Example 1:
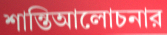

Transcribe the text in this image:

শান্তিআলোচনার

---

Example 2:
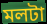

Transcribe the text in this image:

মলটা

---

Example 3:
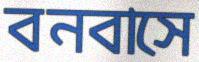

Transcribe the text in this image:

বনবাসে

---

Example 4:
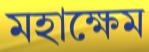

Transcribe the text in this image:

মহাক্ষেম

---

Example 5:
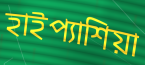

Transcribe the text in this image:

হাইপ্যাশিয়া